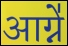
आग्ने॑